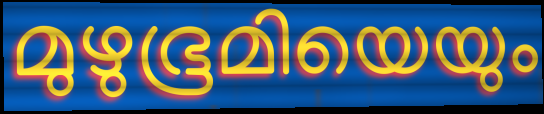
മുഴുഭൂമിയെയും